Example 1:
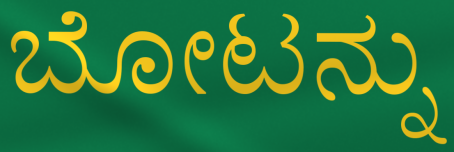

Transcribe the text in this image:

ಬೋಟನ್ನು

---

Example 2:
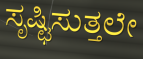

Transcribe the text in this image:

ಸೃಷ್ಟಿಸುತ್ತಲೇ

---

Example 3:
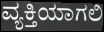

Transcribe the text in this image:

ವ್ಯಕ್ತಿಯಾಗಲಿ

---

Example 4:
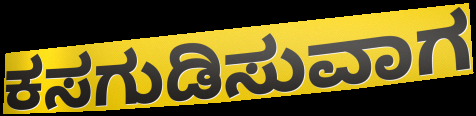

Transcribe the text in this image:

ಕಸಗುಡಿಸುವಾಗ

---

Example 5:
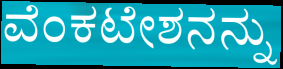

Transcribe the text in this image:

ವೆಂಕಟೇಶನನ್ನು